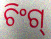
ଚିଂଗ୍